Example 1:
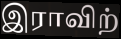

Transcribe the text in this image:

இராவிற்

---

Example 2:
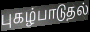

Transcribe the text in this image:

புகழ்பாடுதல்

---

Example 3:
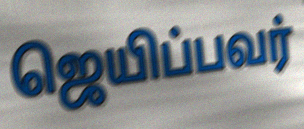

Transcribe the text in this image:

ஜெயிப்பவர்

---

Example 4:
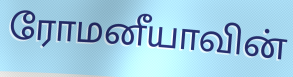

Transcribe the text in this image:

ரோமனீயாவின்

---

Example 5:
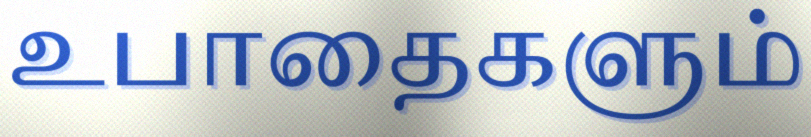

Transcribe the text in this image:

உபாதைகளும்